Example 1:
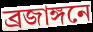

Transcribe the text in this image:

ব্রজাঙ্গনে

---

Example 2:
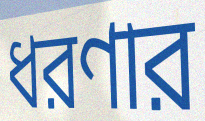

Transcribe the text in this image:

ধরণার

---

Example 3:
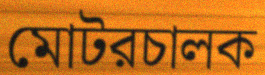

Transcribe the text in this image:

মোটরচালক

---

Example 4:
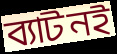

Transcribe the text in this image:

ব্যাটনই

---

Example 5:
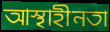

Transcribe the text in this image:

আস্থাহীনতা